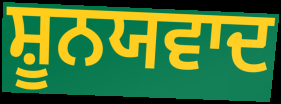
ਸ਼ੂਨਯਵਾਦ